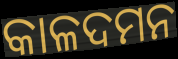
କାଳଦମନ